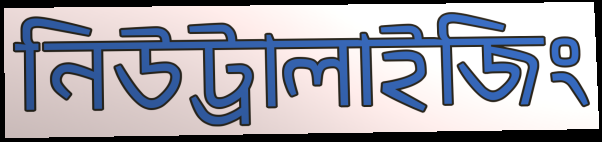
নিউট্রালাইজিং